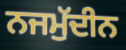
ਨਜਮੁੱਦੀਨ